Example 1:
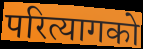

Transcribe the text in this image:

परित्यागको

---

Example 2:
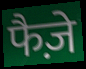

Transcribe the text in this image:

फैज़े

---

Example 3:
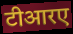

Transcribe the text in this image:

टीआरए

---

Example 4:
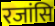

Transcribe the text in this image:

रजांसि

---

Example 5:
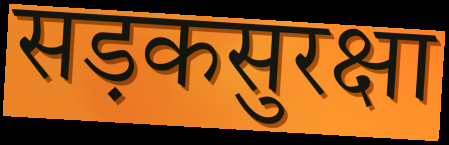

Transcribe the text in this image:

सड़कसुरक्षा